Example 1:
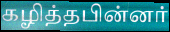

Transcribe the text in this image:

கழித்தபின்னர்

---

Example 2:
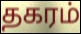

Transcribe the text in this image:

தகரம்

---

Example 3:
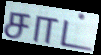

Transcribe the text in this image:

சாட்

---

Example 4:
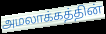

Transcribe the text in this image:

அமலாக்கத்தின்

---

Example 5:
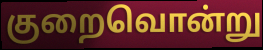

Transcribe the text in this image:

குறைவொன்று